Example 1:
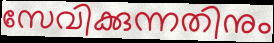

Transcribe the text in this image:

സേവിക്കുന്നതിനും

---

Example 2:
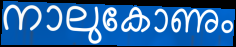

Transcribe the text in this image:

നാലുകോണും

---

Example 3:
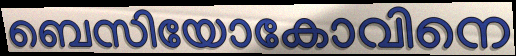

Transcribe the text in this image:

ബെസിയോകോവിനെ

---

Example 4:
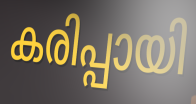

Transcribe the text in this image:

കരിപ്പായി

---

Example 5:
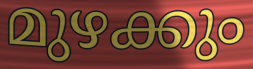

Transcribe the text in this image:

മുഴക്കും